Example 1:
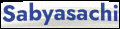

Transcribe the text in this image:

Sabyasachi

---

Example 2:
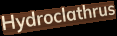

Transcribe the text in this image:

Hydroclathrus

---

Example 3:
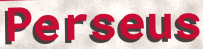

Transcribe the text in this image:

Perseus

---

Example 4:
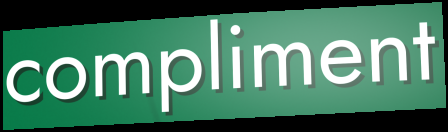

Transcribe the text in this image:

compliment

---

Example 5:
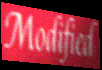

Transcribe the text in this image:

Modified